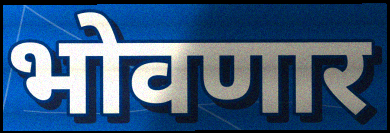
भोवणार